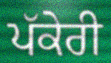
ਪੱਕੇਰੀ